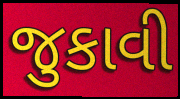
જુકાવી